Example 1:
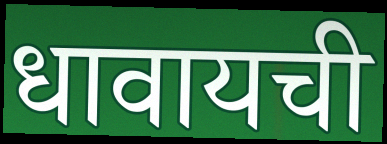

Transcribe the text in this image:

धावायची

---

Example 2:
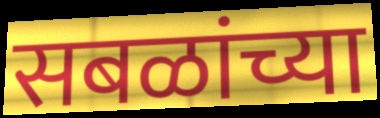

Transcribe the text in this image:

सबळांच्या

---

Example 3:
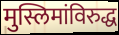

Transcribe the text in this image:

मुस्लिमांविरुद्ध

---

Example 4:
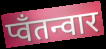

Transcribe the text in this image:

प्वॅंतन्वार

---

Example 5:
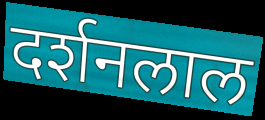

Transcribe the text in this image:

दर्शनलाल